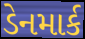
ડેનમાર્ક